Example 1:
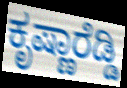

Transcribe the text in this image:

ಕೃಷ್ಣಾರೆಡ್ಡಿ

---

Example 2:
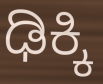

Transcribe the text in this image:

ಢಿಕ್ಕಿ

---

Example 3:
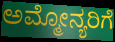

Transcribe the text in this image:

ಅಮ್ಮೋನ್ಯರಿಗೆ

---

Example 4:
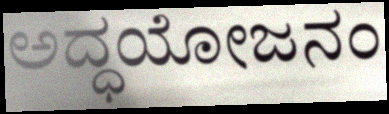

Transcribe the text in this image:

ಅದ್ಧಯೋಜನಂ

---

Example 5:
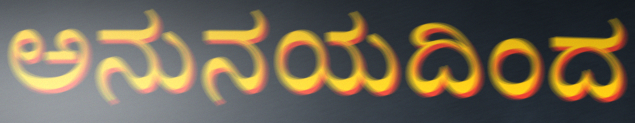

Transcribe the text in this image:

ಅನುನಯದಿಂದ